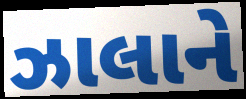
ઝાલાને